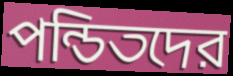
পন্ডিতদের